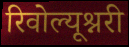
रिवोल्यूश्नरी